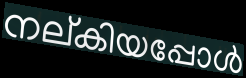
നല്കിയപ്പോൾ